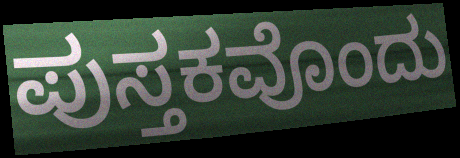
ಪುಸ್ತಕವೊಂದು